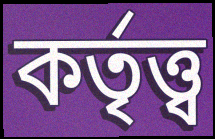
কর্তৃত্ত্ব